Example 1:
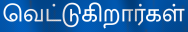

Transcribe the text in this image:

வெட்டுகிறார்கள்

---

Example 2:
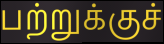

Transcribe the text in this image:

பற்றுக்குச்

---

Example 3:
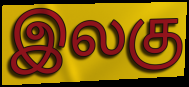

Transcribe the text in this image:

இலகு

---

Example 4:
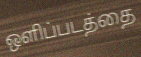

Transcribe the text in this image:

ஒளிப்படத்தை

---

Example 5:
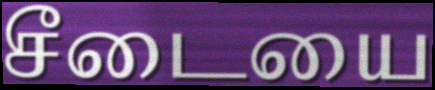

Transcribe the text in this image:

சீடையை